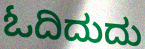
ಓದಿದುದು